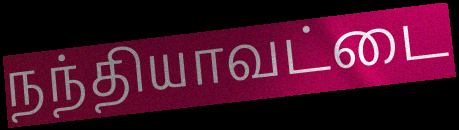
நந்தியாவட்டை